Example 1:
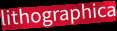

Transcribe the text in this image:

lithographica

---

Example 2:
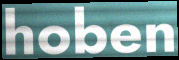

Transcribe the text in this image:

hoben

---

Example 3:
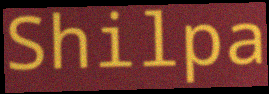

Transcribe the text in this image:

Shilpa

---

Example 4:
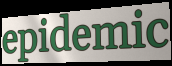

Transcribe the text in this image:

epidemic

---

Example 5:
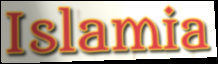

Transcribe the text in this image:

Islamia